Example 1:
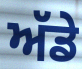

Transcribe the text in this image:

ਅੱਡੇ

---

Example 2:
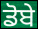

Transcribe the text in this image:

ਡੋਬੇ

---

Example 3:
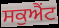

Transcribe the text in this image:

ਸਕੁਐਂਟ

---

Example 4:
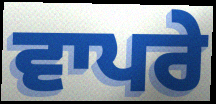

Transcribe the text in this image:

ਵਾਪਰੇ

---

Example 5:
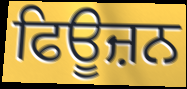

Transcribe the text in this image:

ਫਿਊਜ਼ਨ